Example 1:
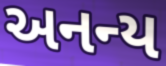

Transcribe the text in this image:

અનન્ય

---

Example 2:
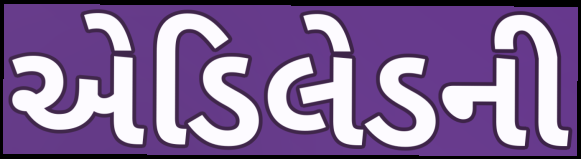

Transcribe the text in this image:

એડિલેડની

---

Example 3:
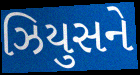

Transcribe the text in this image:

ઝિયુસને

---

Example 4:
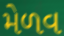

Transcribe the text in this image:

મેળવ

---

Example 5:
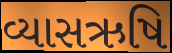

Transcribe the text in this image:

વ્યાસઋષિ